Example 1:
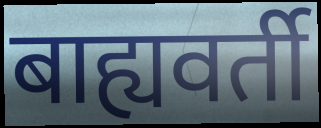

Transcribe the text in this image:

बाह्यवर्ती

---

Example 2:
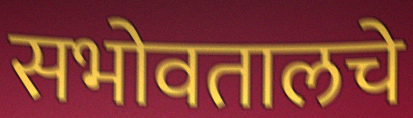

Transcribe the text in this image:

सभोवतालचे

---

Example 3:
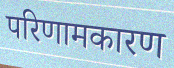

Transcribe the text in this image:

परिणामकारण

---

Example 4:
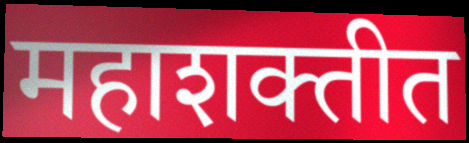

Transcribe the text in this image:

महाशक्तीत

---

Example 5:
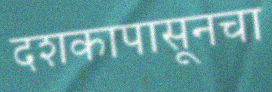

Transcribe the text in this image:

दशकापासूनचा